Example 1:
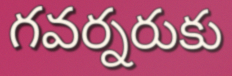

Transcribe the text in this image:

గవర్నరుకు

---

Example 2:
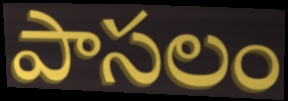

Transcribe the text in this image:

పాసలం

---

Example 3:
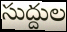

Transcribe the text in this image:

సుద్దుల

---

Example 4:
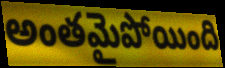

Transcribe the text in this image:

అంతమైపోయింది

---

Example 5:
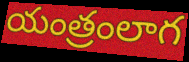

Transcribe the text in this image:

యంత్రంలాగ